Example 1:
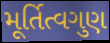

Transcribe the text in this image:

મૂર્તિત્વગુણ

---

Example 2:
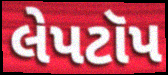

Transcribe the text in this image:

લેપટૉપ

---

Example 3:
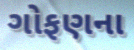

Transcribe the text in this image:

ગોફણના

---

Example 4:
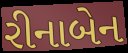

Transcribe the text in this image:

રીનાબેન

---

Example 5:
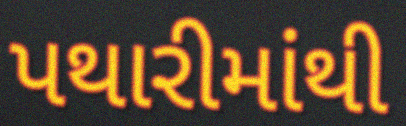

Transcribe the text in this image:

પથારીમાંથી